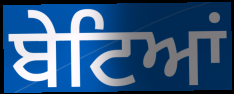
ਬੇਟਿਆਂ